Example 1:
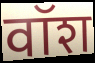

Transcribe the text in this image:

वॉश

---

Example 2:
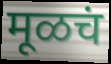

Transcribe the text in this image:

मूळचं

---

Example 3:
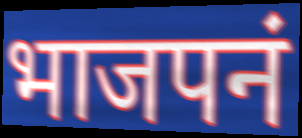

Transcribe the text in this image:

भाजपनं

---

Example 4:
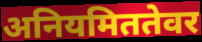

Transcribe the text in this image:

अनियमिततेवर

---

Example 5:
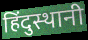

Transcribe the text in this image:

हिंदुस्थानी